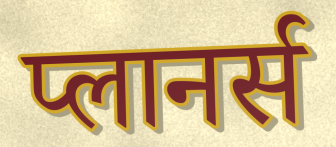
प्लानर्स